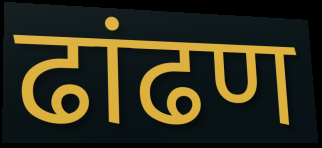
ढांढण